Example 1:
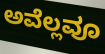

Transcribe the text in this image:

ಅವೆಲ್ಲವೂ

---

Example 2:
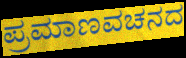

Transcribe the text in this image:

ಪ್ರಮಾಣವಚನದ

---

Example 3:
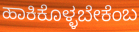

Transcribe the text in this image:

ಹಾಕಿಕೊಳ್ಳಬೇಕೆಂಬ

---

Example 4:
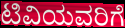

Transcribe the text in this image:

ಟಿವಿಯವರಿಗೆ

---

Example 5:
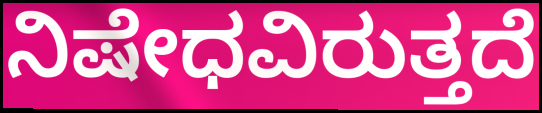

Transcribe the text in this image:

ನಿಷೇಧವಿರುತ್ತದೆ